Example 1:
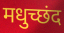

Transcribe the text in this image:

मधुच्छंद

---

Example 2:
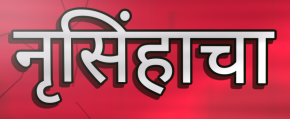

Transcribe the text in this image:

नृसिंहाचा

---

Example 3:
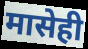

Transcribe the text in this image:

मासेही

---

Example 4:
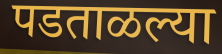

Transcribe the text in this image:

पडताळल्या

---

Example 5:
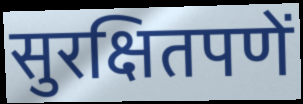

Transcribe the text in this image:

सुरक्षितपणें